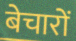
बेचारों